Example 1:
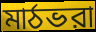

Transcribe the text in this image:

মাঠভরা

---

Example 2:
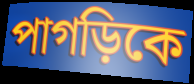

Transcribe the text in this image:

পাগড়িকে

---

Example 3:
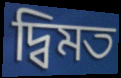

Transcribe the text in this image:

দ্বিমত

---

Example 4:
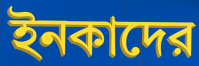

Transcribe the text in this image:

ইনকাদের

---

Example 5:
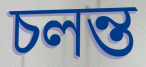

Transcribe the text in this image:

চলন্ত